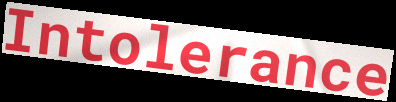
Intolerance